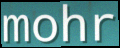
mohr